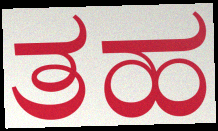
ತಹ